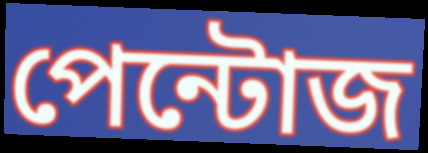
পেন্টোজ